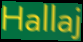
Hallaj